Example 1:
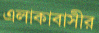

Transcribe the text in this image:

এলাকাবাসীর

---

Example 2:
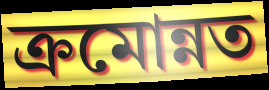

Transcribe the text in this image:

ক্রমোন্নত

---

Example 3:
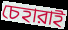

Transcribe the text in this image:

চেহারাই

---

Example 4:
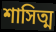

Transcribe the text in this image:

শাসিত্ম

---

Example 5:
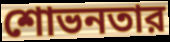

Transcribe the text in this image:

শোভনতার